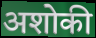
अशोकी